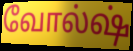
வோல்ஷ்